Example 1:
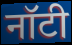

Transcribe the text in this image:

नॉटी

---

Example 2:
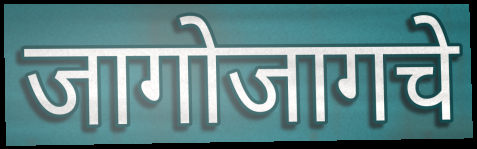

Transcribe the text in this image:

जागोजागचे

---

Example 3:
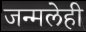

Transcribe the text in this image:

जन्मलेही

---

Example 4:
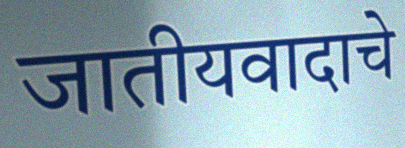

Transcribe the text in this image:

जातीयवादाचे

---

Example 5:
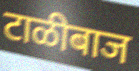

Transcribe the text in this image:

टाळीबाज